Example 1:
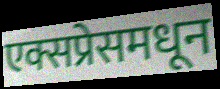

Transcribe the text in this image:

एक्सप्रेसमधून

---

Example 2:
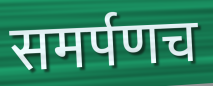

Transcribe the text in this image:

समर्पणच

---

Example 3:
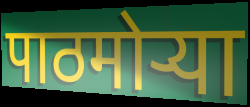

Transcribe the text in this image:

पाठमोऱ्या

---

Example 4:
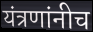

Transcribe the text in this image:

यंत्रणांनीच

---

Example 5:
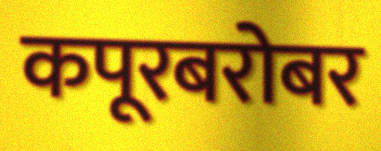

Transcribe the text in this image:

कपूरबरोबर